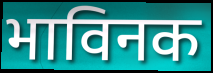
भाविनक